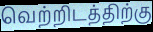
வெற்றிடத்திற்கு